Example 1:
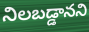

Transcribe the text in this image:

నిలబడ్డానని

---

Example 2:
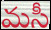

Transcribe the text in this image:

మసీ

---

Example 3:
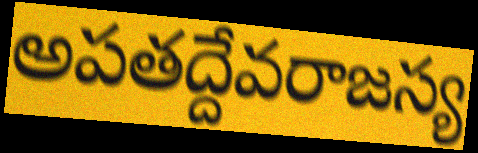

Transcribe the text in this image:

అపతద్దేవరాజస్య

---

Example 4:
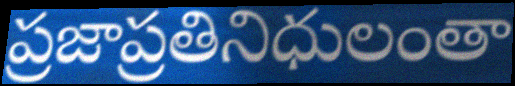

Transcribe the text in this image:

ప్రజాప్రతినిధులంతా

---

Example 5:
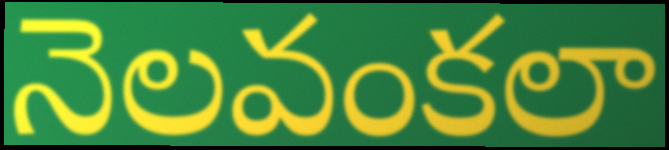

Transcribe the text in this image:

నెలవంకలా